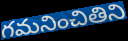
గమనించితిని